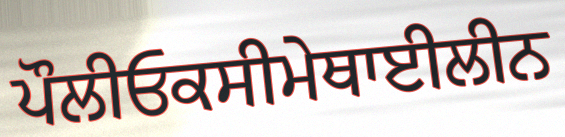
ਪੌਲੀਓਕਸੀਮੇਥਾਈਲੀਨ